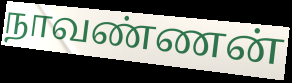
நாவண்ணன்